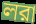
লরা